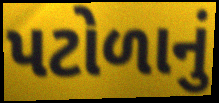
પટોળાનું